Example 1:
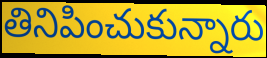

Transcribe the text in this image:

తినిపించుకున్నారు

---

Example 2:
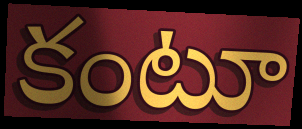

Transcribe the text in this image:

కంటూ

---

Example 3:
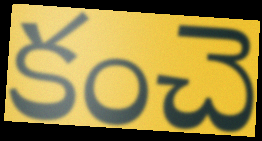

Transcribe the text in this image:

కంచె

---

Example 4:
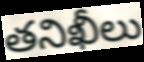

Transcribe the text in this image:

తనిఖీలు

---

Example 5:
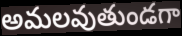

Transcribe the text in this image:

అమలవుతుండగా